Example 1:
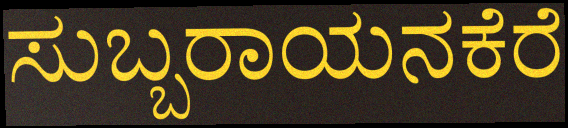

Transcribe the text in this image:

ಸುಬ್ಬರಾಯನಕೆರೆ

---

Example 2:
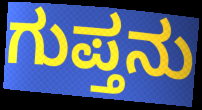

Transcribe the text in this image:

ಗುಪ್ತನು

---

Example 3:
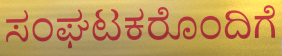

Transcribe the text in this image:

ಸಂಘಟಕರೊಂದಿಗೆ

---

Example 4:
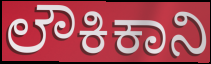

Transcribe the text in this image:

ಲೌಕಿಕಾನಿ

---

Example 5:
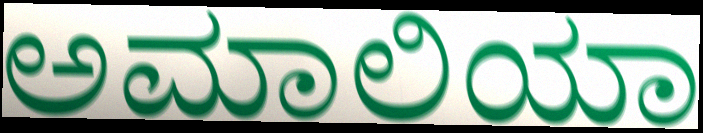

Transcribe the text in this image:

ಅಮಾಲಿಯಾ